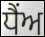
ਧੈਂਅ